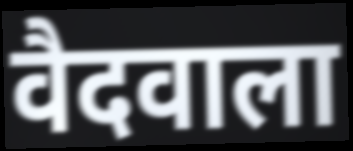
वैदवाला